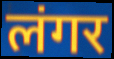
लंगर